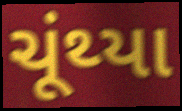
ચૂંથ્યા